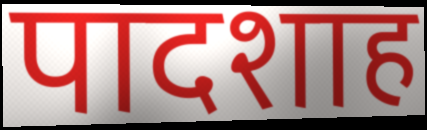
पादशाह